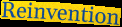
Reinvention